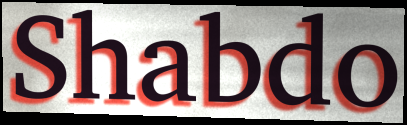
Shabdo